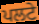
ਪਲਟੇ